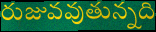
రుజువవుతున్నది